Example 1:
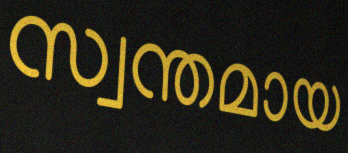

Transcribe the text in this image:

സ്വന്തമായ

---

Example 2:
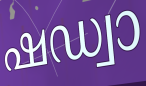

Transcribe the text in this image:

ഷഡ്വാ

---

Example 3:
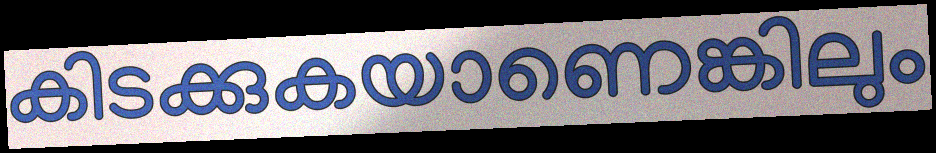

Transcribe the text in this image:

കിടക്കുകയാണെങ്കിലും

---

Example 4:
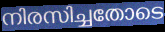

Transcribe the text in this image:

നിരസിച്ചതോടെ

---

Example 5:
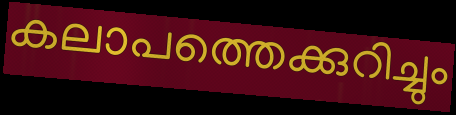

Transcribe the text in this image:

കലാപത്തെക്കുറിച്ചും